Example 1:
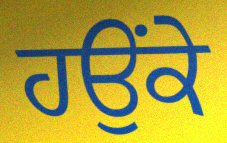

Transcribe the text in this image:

ਹਉਂਕੇ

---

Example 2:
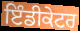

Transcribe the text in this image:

ਇੰਡੀਕੇਟਰ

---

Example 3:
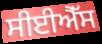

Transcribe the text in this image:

ਸੀਈਐੱਸ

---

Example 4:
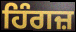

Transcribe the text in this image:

ਹਿੰਗਜ਼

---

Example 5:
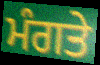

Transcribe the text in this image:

ਮੰਗਤੇ